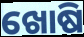
ଖୋଷି